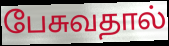
பேசுவதால்